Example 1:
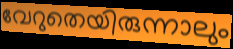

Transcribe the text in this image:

വേറുതെയിരുന്നാലും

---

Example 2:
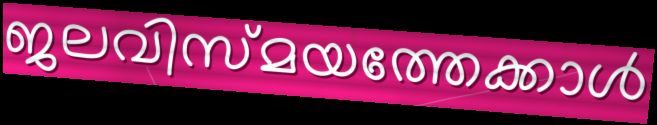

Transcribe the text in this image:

ജലവിസ്മയത്തേക്കാൾ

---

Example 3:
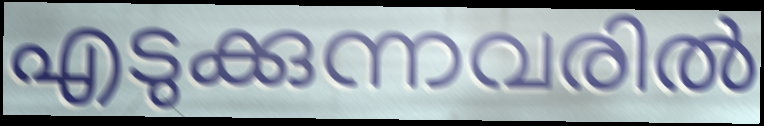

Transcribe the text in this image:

എടുക്കുന്നവരിൽ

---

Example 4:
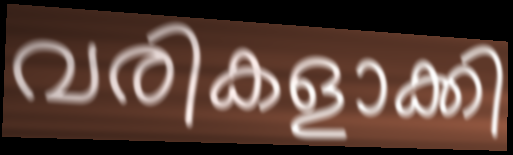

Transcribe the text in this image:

വരികളാക്കി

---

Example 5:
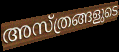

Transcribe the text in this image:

അസ്ത്രങ്ങളുടെ